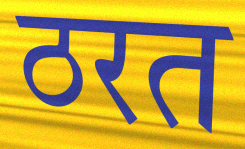
ठरत